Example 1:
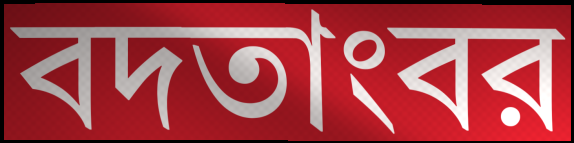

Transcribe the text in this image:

বদতাংবর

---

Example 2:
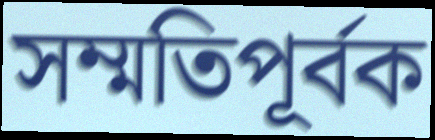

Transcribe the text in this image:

সম্মতিপূর্বক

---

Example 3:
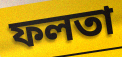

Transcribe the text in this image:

ফলতা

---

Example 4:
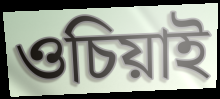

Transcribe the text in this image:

ওচিয়াই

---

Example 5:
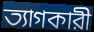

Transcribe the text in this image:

ত্যাগকারী